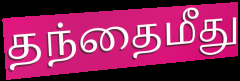
தந்தைமீது